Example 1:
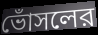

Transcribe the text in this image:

ভোঁসলের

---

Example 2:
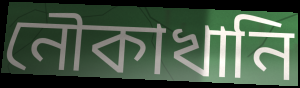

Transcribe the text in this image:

নৌকাখানি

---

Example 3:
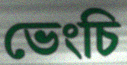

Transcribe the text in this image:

ভেংচি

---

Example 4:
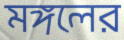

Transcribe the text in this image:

মঙ্গলের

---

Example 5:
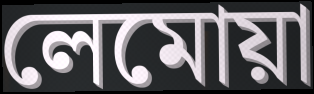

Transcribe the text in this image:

লেমোয়া